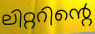
ലിറ്ററിന്റെ